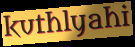
kuthlyahi